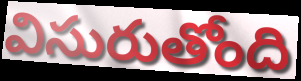
విసురుతోంది